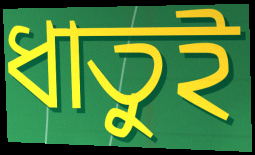
ধাতুই